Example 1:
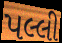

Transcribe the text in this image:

પલ્લી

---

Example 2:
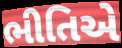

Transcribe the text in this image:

ભીતિએ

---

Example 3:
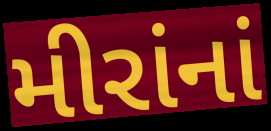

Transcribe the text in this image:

મીરાંનાં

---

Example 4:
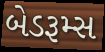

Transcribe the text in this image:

બેડરૂમ્સ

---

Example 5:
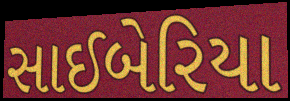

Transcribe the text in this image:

સાઈબેરિયા